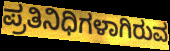
ಪ್ರತಿನಿಧಿಗಳಾಗಿರುವ